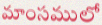
మాంసములో